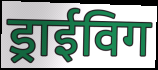
ड्राईविग